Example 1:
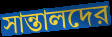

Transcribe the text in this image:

সান্তালদের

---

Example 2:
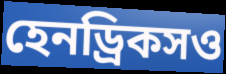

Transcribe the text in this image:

হেনড্রিকসও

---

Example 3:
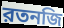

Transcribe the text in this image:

রতনজি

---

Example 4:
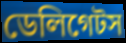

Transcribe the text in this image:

ডেলিগেটস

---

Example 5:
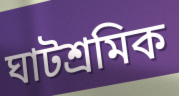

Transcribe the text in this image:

ঘাটশ্রমিক